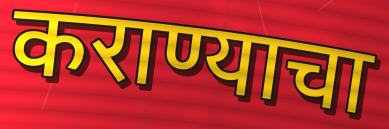
कराण्याचा